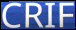
CRIF